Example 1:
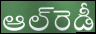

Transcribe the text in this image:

ఆల్‌రెడీ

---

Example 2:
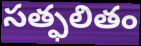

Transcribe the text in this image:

సత్ఫలితం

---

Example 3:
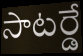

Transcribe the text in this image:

సాటర్డే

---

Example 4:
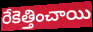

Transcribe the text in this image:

రేకెత్తించాయి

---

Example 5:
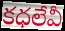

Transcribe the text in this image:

కధలేవీ